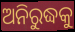
ଅନିରୁଦ୍ଧକୁ